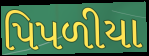
પિપળીયા